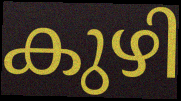
കുഴി